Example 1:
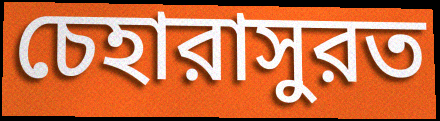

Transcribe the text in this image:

চেহারাসুরত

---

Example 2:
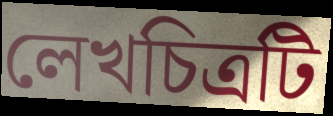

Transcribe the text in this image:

লেখচিত্রটি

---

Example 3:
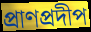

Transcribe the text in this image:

প্রাণপ্রদীপ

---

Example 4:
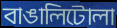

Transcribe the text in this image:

বাঙালিটোলা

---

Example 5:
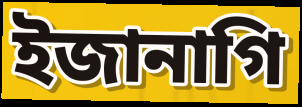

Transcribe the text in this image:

ইজানাগি